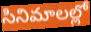
సినిమాలల్లో